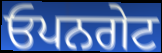
ਓਪਨਗੇਟ